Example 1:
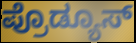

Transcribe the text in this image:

ಪ್ರೊಡ್ಯೂಸ್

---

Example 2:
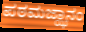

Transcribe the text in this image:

ಪಠಮಜ್ಝಾನಂ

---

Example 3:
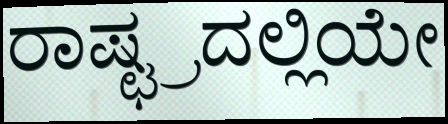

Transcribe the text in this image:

ರಾಷ್ಟ್ರದಲ್ಲಿಯೇ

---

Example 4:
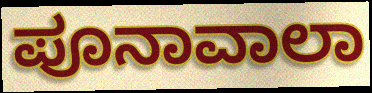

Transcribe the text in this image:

ಪೂನಾವಾಲಾ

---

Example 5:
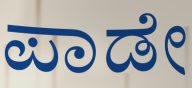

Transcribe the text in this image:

ಪಾಡೇ